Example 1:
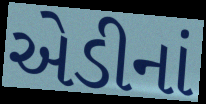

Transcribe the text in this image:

એડીનાં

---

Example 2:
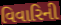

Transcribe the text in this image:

વિવારિની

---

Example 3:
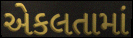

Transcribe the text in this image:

એકલતામાં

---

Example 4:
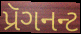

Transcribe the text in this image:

પ્રૅગનન્ટ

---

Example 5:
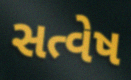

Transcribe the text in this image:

સત્વેષ